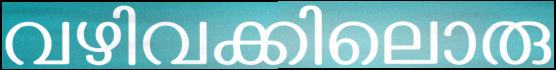
വഴിവക്കിലൊരു